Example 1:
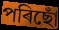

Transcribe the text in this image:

পৰিছোঁ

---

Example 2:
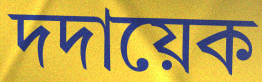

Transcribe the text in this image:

দদায়েক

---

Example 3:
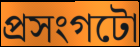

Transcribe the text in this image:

প্ৰসংগটো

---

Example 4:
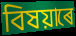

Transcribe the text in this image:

বিষয়াৰে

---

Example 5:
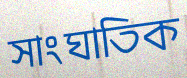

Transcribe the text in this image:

সাংঘাতিক